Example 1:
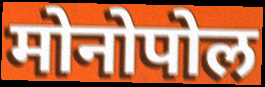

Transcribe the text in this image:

मोनोपोल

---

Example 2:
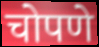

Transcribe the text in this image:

चोपणे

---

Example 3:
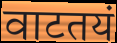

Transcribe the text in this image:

वाटतयं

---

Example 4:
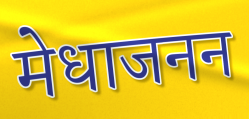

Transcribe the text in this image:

मेधाजनन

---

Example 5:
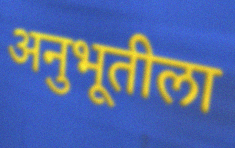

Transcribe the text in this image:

अनुभूतीला